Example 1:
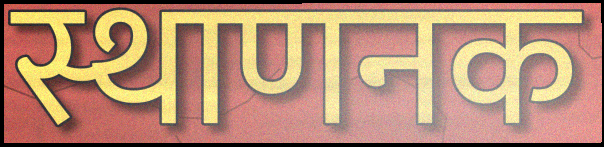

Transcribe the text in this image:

स्थाणनक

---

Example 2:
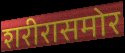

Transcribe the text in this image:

शरीरासमोर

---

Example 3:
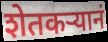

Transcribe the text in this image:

शेतकर्‍यानं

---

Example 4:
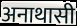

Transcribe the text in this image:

अनाथासी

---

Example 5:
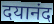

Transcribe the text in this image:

दयानंद